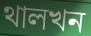
থালখন